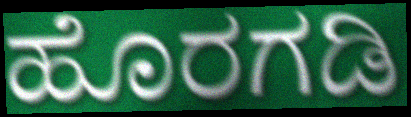
ಹೊರಗಡಿ